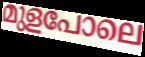
മുളപോലെ